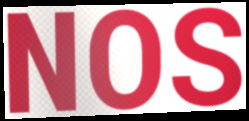
NOS